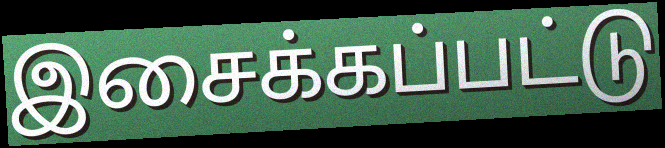
இசைக்கப்பட்டு